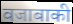
वजाबाकी